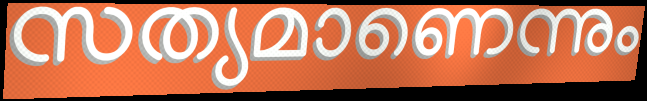
സത്യമാണെന്നും